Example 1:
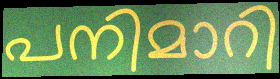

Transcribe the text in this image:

പനിമാറി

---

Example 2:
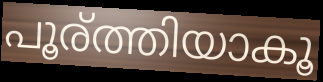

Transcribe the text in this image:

പൂര്ത്തിയാകൂ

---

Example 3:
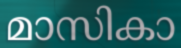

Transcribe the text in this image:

മാസികാ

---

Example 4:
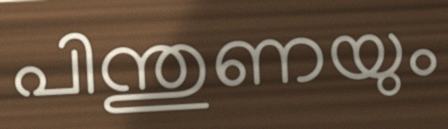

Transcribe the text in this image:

പിന്തുണയും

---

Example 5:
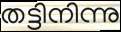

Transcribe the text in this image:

തട്ടിനിന്നു